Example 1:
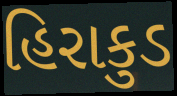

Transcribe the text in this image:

હિરાકુડ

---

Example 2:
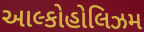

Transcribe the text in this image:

આલ્કોહોલિઝમ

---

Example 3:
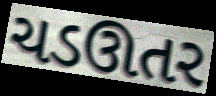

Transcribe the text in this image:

ચડઊતર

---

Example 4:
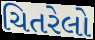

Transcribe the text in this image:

ચિતરેલો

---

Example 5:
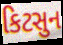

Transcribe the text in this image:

કિટસુન